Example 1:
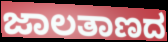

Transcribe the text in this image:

ಜಾಲತಾಣದ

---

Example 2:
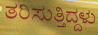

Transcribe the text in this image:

ತರಿಸುತ್ತಿದ್ದಳು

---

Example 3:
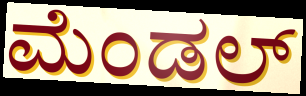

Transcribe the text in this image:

ಮೆಂಡಲ್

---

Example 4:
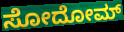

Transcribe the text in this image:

ಸೋದೋಮ್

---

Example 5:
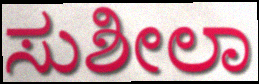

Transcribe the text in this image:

ಸುಶೀಲಾ